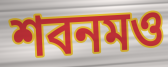
শবনমও